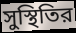
সুস্থিতির